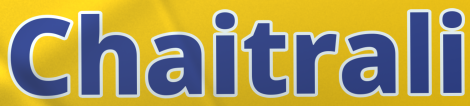
Chaitrali